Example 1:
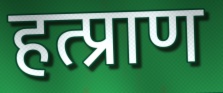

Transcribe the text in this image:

हत्प्राण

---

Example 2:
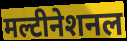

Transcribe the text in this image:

मल्टीनेशनल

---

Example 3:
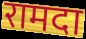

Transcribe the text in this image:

रामदा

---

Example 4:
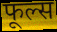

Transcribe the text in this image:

फूल्स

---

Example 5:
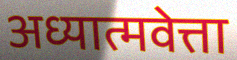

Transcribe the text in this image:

अध्यात्मवेत्ता